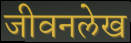
जीवनलेख